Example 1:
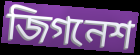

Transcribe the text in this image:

জিগনেশ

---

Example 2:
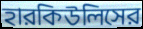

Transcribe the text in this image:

হারকিউলিসের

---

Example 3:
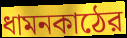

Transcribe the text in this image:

ধামনকাঠের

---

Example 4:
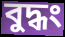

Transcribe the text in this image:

বুদ্ধং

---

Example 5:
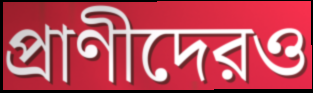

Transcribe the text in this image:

প্রাণীদেরও